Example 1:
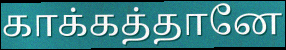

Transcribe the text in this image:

காக்கத்தானே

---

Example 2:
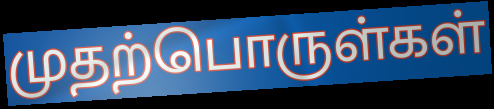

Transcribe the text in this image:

முதற்பொருள்கள்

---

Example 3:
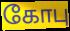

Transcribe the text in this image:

கோபு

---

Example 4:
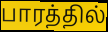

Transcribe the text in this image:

பாரத்தில்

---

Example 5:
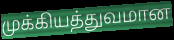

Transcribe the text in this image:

முக்கியத்துவமான